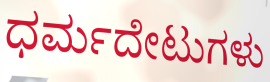
ಧರ್ಮದೇಟುಗಳು